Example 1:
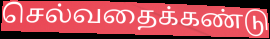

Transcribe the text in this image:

செல்வதைக்கண்டு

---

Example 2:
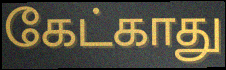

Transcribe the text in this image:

கேட்காது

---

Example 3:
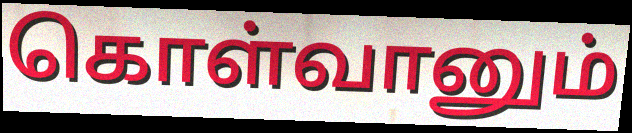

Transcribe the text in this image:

கொள்வானும்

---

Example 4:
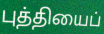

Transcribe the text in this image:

புத்தியைப்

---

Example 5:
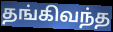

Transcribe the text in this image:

தங்கிவந்த